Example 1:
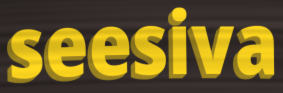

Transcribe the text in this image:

seesiva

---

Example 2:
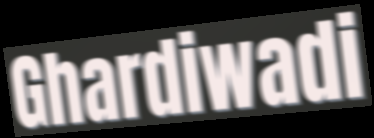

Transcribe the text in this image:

Ghardiwadi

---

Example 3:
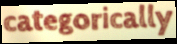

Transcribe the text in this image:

categorically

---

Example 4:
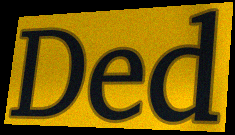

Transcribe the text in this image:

Ded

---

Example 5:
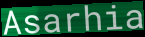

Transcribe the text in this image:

Asarhia